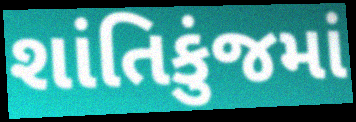
શાંતિકુંજમાં